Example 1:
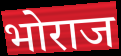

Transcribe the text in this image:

भोराज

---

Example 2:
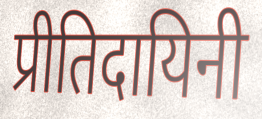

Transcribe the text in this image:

प्रीतिदायिनी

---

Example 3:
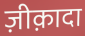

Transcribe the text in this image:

ज़ीक़ादा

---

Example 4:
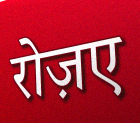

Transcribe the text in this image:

रोज़ए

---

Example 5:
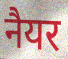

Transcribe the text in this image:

नैयर